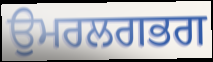
ਉੁਮਰਲਗਭਗ